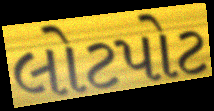
લોટપોટ